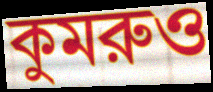
কুমরুও